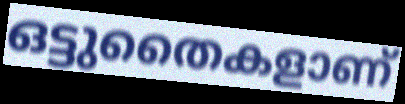
ഒട്ടുതൈകളാണ്